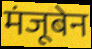
मंजूबेन